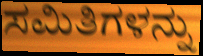
ಸಮಿತಿಗಳನ್ನು